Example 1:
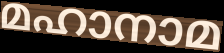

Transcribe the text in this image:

മഹാനാമ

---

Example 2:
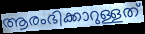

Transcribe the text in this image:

ആരംഭിക്കാറുള്ളത്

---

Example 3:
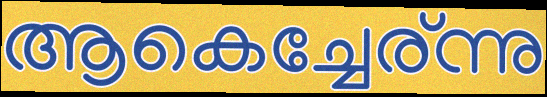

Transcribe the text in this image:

ആകെച്ചേര്ന്നു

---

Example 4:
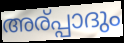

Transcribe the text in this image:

അര്പ്പാദും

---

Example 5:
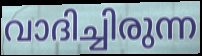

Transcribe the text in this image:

വാദിച്ചിരുന്ന